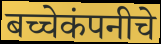
बच्चेकंपनीचे